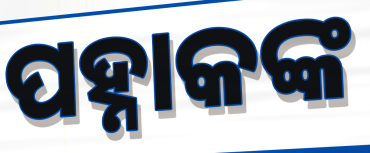
ପହ୍ନାକଙ୍କ